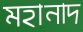
মহানাদ